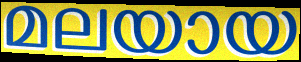
മലയായ